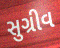
સુગ્રીવ